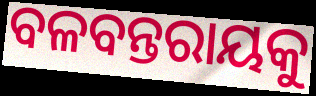
ବଳବନ୍ତରାୟକୁ